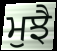
ਮੁਝੈ